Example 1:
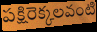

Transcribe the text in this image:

పక్షిరెక్కలవంటి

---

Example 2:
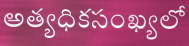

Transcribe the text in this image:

అత్యధికసంఖ్యలో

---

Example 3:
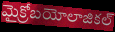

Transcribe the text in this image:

మైక్రోబయోలాజికల్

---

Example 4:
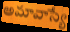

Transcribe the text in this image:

అమావాస్యే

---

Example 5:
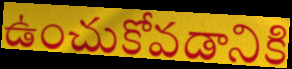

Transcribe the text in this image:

ఉంచుకోవడానికి